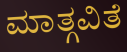
ಮಾತ್ಗವಿತೆ